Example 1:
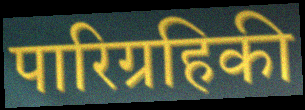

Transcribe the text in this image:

पारिग्रहिकी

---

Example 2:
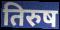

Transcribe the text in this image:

तिरुष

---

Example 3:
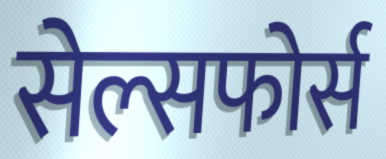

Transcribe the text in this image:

सेल्सफोर्स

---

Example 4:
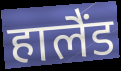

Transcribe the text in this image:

हालैंड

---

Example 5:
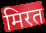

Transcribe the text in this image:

मिरत